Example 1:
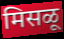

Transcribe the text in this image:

मिसळू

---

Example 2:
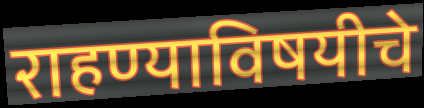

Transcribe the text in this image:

राहण्याविषयीचे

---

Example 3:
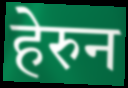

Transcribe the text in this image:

हेरुन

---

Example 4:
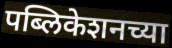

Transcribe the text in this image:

पब्लिकेशनच्या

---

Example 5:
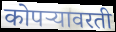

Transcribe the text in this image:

कोपऱ्यावरती